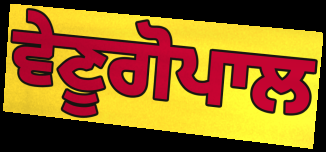
ਵੇਣੂਗੋਪਾਲ